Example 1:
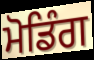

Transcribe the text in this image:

ਮੋਡਿੰਗ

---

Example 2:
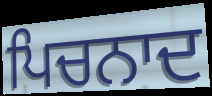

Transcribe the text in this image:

ਪਿਚਨਾਦ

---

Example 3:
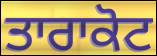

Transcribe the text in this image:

ਤਾਰਾਕੋਟ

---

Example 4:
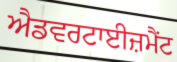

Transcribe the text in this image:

ਐਡਵਰਟਾਈਜ਼ਮੈਂਟ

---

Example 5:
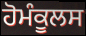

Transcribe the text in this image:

ਹੋਮੰਕੂਲਸ